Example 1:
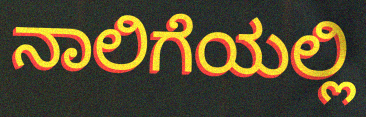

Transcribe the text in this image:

ನಾಲಿಗೆಯಲ್ಲಿ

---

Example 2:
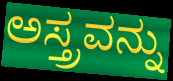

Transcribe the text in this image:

ಅಸ್ತ್ರವನ್ನು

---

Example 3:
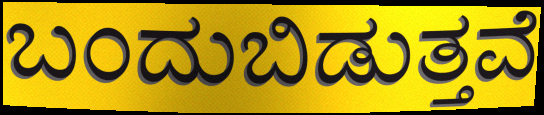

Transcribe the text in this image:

ಬಂದುಬಿಡುತ್ತವೆ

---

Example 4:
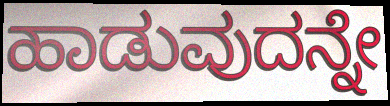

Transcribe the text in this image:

ಹಾಡುವುದನ್ನೇ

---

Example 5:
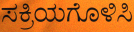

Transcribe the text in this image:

ಸಕ್ರಿಯಗೊಳಿಸಿ